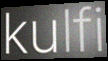
kulfi